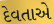
દેવતાએ